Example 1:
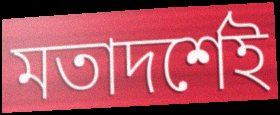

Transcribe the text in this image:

মতাদর্শেই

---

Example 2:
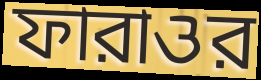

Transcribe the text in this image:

ফারাওর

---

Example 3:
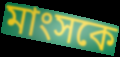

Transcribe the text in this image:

মাংসকে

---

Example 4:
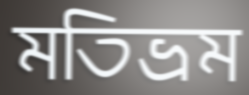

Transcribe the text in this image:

মতিভ্রম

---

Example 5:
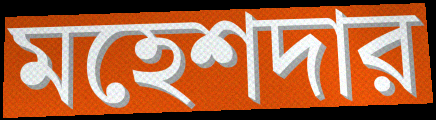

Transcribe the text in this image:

মহেশদার